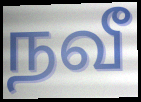
நவீ